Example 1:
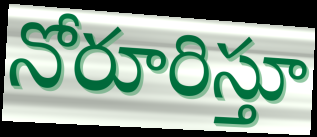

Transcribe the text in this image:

నోరూరిస్తూ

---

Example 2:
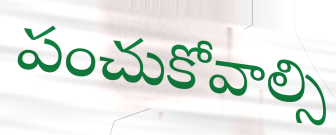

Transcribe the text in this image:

పంచుకోవాల్సి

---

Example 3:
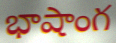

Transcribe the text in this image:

భాషాంగ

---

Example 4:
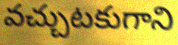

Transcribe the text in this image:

వచ్చుటకుగాని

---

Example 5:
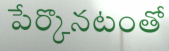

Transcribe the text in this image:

పేర్కొనటంతో